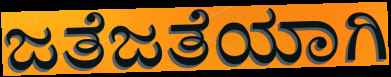
ಜತೆಜತೆಯಾಗಿ